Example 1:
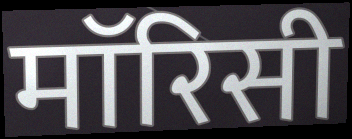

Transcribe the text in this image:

मॉरिसी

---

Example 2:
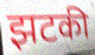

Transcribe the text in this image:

झटकी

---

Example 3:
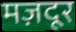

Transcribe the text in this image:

मज़दूर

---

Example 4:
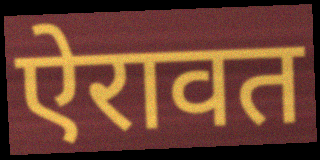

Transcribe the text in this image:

ऐरावत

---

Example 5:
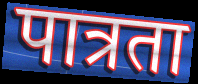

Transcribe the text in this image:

पात्रता